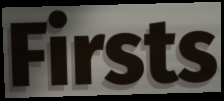
Firsts